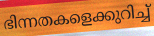
ഭിന്നതകളെക്കുറിച്ച്